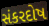
સંકરદોષ